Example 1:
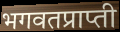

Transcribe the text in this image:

भगवतप्राप्ती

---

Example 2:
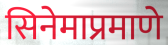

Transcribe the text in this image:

सिनेमाप्रमाणे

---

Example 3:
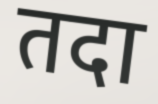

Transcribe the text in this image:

तदा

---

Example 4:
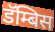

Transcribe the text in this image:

डॅम्बिस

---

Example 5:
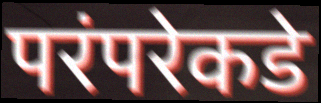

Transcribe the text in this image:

परंपरेकडे